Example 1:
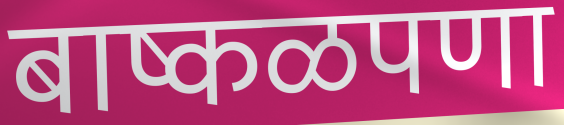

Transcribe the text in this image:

बाष्कळपणा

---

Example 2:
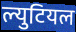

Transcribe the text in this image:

ल्युटियल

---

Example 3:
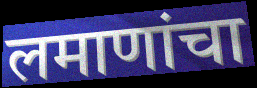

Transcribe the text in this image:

लमाणांचा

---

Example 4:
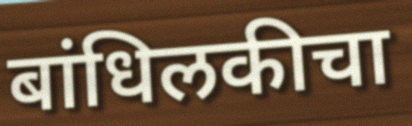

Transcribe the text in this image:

बांधिलकीचा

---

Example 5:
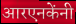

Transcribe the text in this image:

आरएनकेंनी